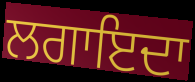
ਲਗਾਇਦਾ